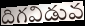
దిగవిడువ